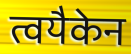
त्वयैकेन